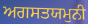
ਅਗਸਤਯਮੁਨੀ